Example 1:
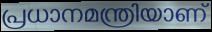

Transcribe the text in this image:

പ്രധാനമന്ത്രിയാണ്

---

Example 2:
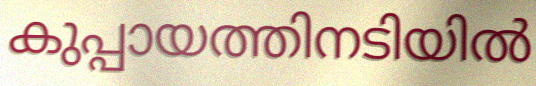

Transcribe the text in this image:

കുപ്പായത്തിനടിയിൽ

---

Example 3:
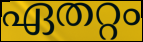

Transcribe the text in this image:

ഏതറ്റം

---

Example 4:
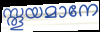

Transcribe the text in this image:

സ്തൂയമാനേ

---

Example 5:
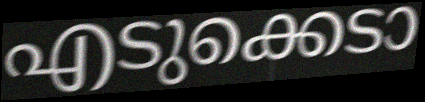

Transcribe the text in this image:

എടുക്കെടാ